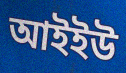
আইইউ